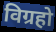
विग्रहो